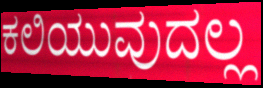
ಕಲಿಯುವುದಲ್ಲ